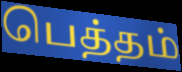
பெத்தம்